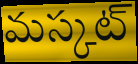
మస్కట్